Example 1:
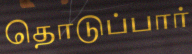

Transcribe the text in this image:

தொடுப்பார்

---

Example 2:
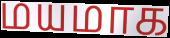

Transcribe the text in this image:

மயமாக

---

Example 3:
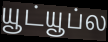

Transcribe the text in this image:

யூட்யூப்ல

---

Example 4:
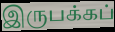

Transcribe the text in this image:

இருபக்கப்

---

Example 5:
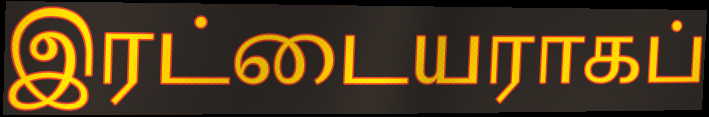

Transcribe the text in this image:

இரட்டையராகப்